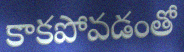
కాకపోవడంతో